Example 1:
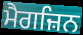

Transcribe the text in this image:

ਮੈਗਜ਼ਿਨ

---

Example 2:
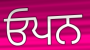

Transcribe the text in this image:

ਓਪਨ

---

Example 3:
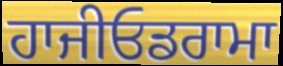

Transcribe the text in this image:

ਹਾਜੀਓਡਰਾਮਾ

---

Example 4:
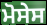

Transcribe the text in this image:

ਮੋਸੇਸ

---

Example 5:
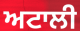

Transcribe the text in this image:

ਅਟਾਲੀ